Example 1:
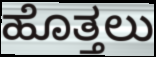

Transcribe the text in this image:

ಹೊತ್ತಲು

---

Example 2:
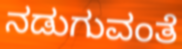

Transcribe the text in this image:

ನಡುಗುವಂತೆ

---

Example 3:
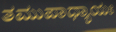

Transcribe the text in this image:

ತಮುಪಾಧ್ಯಾಯಃ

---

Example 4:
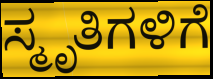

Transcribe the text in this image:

ಸ್ಮೃತಿಗಳಿಗೆ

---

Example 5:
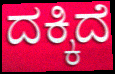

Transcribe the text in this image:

ದಕ್ಕಿದೆ